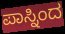
ಪಾಸ್ನಿಂದ